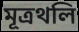
মূত্রথলি